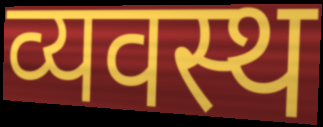
व्यवस्थ